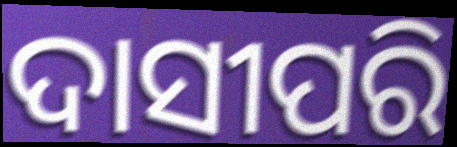
ଦାସୀପରି